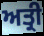
ਅਤ੍ਰੀ